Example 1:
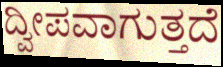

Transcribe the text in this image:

ದ್ವೀಪವಾಗುತ್ತದೆ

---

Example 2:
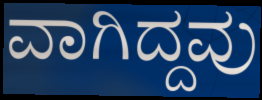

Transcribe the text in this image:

ವಾಗಿದ್ದವು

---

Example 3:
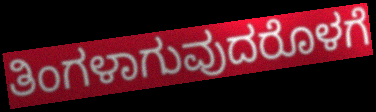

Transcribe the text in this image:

ತಿಂಗಳಾಗುವುದರೊಳಗೆ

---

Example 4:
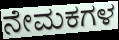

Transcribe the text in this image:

ನೇಮಕಗಳ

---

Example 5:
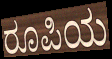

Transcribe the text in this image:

ರೂಪಿಯ